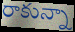
రాకున్నా